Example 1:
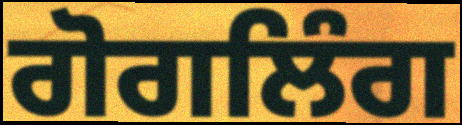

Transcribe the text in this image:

ਗੋਗਲਿੰਗ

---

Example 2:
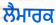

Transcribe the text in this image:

ਲੈਮਾਰਕ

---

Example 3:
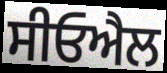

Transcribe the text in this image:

ਸੀਓਐਲ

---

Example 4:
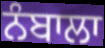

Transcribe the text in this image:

ਨੰਬਾਲਾ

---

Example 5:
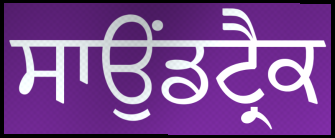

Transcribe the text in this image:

ਸਾਉਂਡਟ੍ਰੈਕ